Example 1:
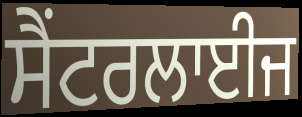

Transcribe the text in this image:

ਸੈਂਟਰਲਾਈਜ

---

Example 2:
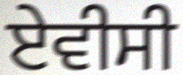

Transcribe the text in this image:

ਏਵੀਸੀ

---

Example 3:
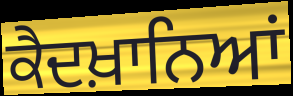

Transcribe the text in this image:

ਕੈਦਖ਼ਾਨਿਆਂ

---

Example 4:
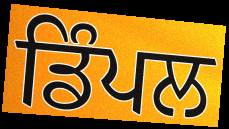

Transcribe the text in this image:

ਡਿੰਪਲ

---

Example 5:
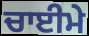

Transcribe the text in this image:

ਚਾਈਮੇ